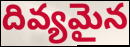
దివ్యమైన